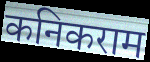
कनिकराम